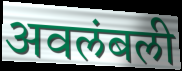
अवलंबली